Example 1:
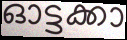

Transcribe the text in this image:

ഓട്ടക്കാ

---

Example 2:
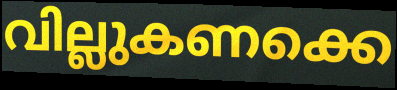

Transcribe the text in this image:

വില്ലുകണക്കെ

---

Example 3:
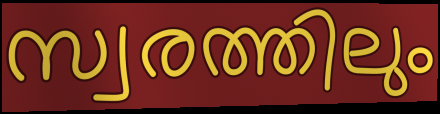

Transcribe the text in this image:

സ്വരത്തിലും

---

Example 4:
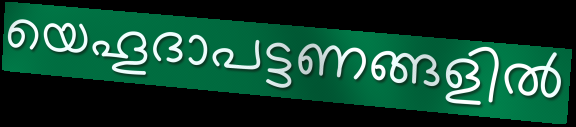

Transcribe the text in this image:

യെഹൂദാപട്ടണങ്ങളിൽ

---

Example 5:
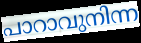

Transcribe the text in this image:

പാറാവുനിന്ന